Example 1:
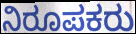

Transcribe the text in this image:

ನಿರೂಪಕರು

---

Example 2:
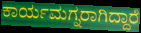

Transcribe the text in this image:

ಕಾರ್ಯಮಗ್ನರಾಗಿದ್ದಾರೆ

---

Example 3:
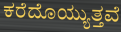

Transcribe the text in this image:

ಕರೆದೊಯ್ಯುತ್ತವೆ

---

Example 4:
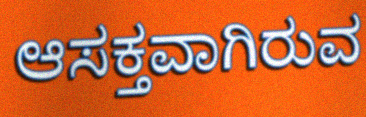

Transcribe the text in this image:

ಆಸಕ್ತವಾಗಿರುವ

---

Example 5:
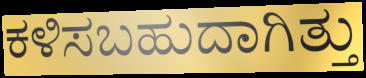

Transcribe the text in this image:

ಕಳಿಸಬಹುದಾಗಿತ್ತು